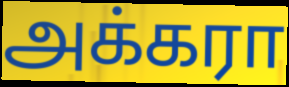
அக்கரா